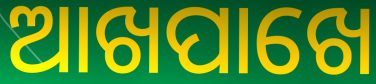
ଆଖପାଖେ